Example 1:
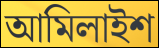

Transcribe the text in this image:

আমিলাইশ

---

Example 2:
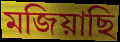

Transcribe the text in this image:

মজিয়াছি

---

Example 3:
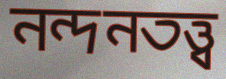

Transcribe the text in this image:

নন্দনতত্ত্ব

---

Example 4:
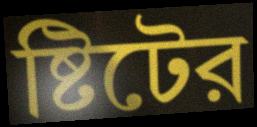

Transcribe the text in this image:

ষ্টিটের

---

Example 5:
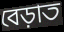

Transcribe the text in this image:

বেড়াত